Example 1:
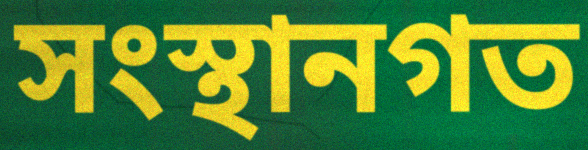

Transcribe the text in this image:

সংস্থানগত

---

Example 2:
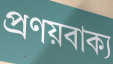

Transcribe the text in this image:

প্রণয়বাক্য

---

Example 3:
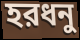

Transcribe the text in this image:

হরধনু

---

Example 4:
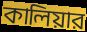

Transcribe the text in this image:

কালিয়ার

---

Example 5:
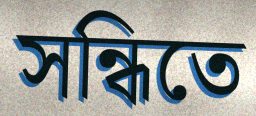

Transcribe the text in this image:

সন্ধিতে